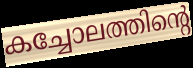
കച്ചോലത്തിന്റെ